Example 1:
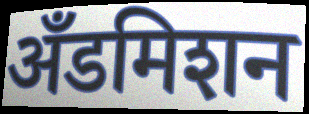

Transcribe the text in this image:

अँडमिशन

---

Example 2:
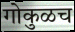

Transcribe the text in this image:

गोकुळच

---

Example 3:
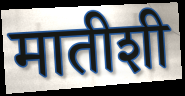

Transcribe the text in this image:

मातीशी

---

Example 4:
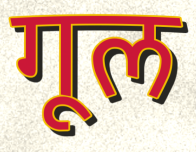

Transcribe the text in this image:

गूल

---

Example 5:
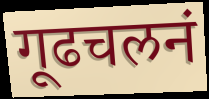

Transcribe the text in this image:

गूढचलनं